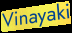
Vinayaki